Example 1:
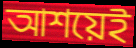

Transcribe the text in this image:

আশয়েই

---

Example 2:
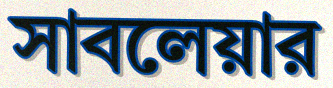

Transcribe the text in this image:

সাবলেয়ার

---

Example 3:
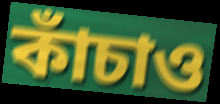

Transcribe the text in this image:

কাঁচাও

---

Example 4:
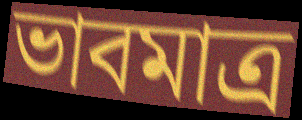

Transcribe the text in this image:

ভাবমাত্র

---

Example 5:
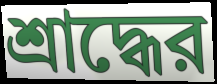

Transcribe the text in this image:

শ্রাদ্ধের